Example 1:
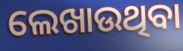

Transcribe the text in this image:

ଲେଖାଉଥିବା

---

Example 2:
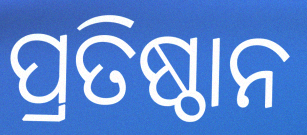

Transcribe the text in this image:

ପ୍ରତିଷ୍ଠାନ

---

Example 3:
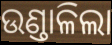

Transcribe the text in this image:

ଉଣ୍ଡାଳିଲା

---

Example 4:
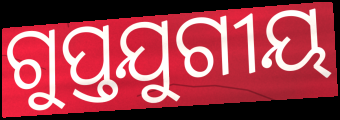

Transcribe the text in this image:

ଗୁପ୍ତଯୁଗୀୟ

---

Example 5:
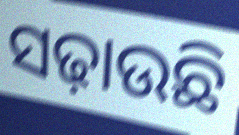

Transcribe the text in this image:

ସଢ଼ାଉଛି